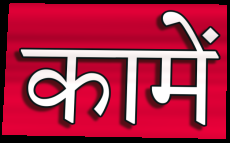
कामें